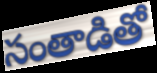
సంతాడితో